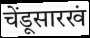
चेंडूसारखं